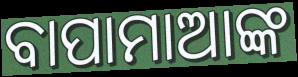
ବାପାମାଆଙ୍କ